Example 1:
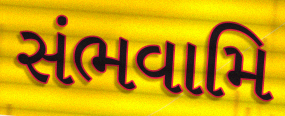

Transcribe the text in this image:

સંભવામિ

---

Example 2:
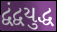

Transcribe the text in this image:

દ્વંદ્વયુદ્ધ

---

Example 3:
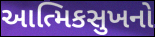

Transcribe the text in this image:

આત્મિકસુખનો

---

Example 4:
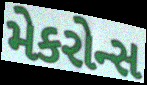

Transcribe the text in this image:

મેકરોન્સ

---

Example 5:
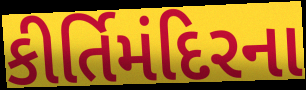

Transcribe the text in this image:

કીર્તિમંદિરના